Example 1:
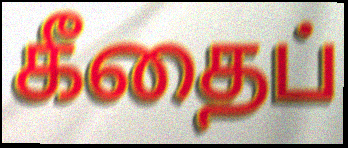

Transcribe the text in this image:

கீதைப்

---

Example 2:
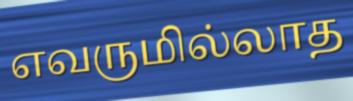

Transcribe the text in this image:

எவருமில்லாத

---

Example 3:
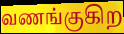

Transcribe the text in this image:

வணங்குகிற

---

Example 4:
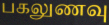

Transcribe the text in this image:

பகலுணவு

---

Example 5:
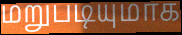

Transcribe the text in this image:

மறுபடியுமாக